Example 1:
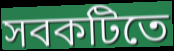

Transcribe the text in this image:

সবকটিতে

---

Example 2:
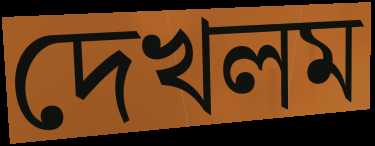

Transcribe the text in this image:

দেখলম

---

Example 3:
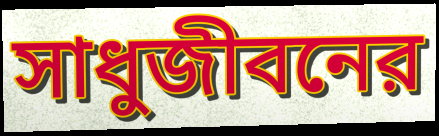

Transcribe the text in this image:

সাধুজীবনের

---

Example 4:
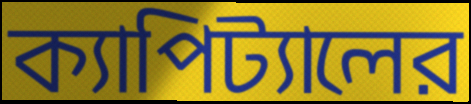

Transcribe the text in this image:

ক্যাপিট্যালের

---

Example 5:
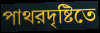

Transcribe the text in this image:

পাথরদৃষ্টিতে